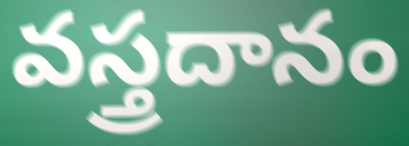
వస్త్రదానం